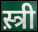
स़्त्री